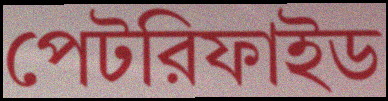
পেটরিফাইড